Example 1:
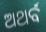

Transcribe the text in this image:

ଅଥର୍ବ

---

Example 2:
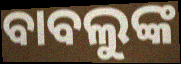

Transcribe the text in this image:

ବାବଲୁଙ୍କ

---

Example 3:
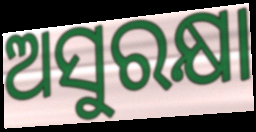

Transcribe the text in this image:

ଅସୁରକ୍ଷା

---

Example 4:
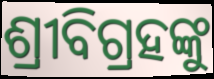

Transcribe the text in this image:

ଶ୍ରୀବିଗ୍ରହଙ୍କୁ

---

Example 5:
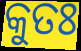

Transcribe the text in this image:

କୁତଃ